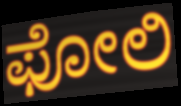
ಫೋಲಿ